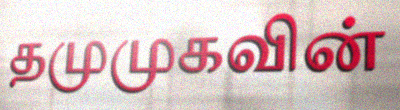
தமுமுகவின்